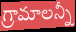
గ్రామాలన్నీ